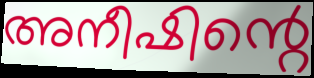
അനീഷിന്റെ